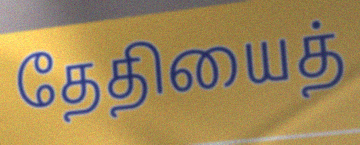
தேதியைத்